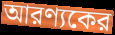
আরণ্যকের